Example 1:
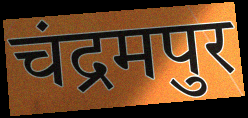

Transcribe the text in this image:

चंद्रमपुर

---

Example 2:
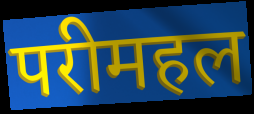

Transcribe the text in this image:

परीमहल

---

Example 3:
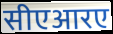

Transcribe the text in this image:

सीएआरए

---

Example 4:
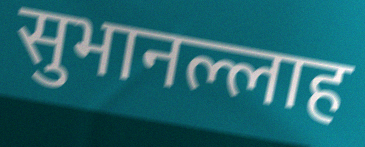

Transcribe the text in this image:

सुभानल्लाह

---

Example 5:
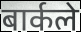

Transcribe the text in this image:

बार्कले